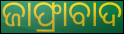
ଜାଫ୍ରାବାଦ